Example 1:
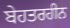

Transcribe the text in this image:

ਬੇਹਤਰਹੀਨ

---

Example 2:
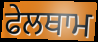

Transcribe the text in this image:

ਫੇਲਥਾਮ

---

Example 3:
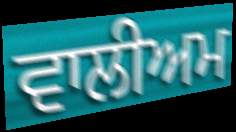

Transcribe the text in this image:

ਵਾਲੀਅਮ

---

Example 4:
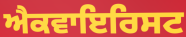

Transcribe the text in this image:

ਐਕਵਾਇਰਿਸਟ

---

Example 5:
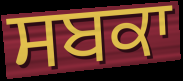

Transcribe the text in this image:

ਸਬਕਾ